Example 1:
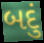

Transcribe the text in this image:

બદું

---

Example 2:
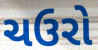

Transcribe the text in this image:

ચઉરો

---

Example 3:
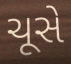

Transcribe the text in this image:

ચૂસે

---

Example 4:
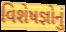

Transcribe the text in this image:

વિશેષજ્ઞોનું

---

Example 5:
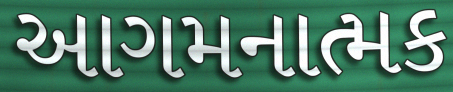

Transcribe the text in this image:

આગમનાત્મક